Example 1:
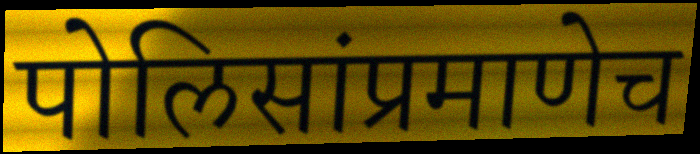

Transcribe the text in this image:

पोलिसांप्रमाणेच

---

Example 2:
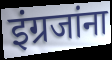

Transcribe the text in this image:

इंग्रजांना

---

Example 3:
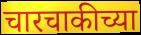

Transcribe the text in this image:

चारचाकीच्या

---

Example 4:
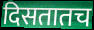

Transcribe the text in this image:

दिसतातच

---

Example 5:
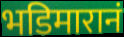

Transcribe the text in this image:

भडिमारानं